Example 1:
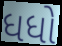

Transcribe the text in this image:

ધધો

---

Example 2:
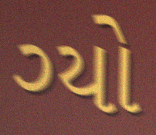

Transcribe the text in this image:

ગ્યો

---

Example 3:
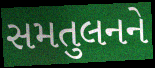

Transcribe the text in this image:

સમતુલનને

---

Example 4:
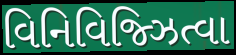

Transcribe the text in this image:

વિનિવિજ્ઝિત્વા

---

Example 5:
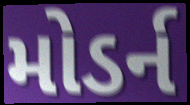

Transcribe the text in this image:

મોડર્ન